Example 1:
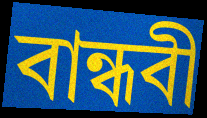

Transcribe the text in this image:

বান্ধবী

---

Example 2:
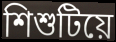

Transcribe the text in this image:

শিশুটিয়ে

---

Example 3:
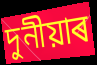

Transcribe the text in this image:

দুনীয়াৰ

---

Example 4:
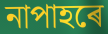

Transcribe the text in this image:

নাপাহৰে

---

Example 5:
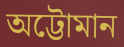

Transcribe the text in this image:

অট্টোমান